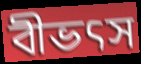
বীভৎস